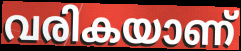
വരികയാണ്